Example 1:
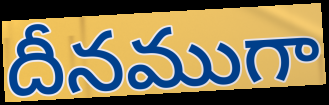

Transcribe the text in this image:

దీనముగా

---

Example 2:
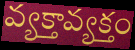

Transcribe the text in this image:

వ్యక్తావ్యక్తం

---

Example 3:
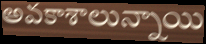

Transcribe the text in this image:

అవకాశాలున్నాయి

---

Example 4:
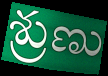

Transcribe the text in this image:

శ్రుణు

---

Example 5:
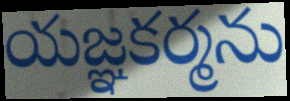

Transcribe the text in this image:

యజ్ఞకర్మను